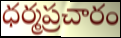
ధర్మప్రచారం